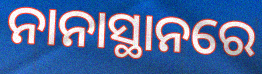
ନାନାସ୍ଥାନରେ